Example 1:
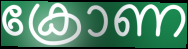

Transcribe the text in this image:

ക്രോണ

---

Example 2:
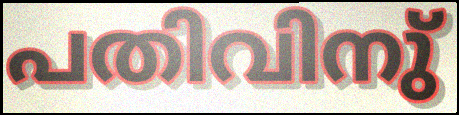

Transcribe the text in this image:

പതിവിനു്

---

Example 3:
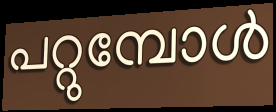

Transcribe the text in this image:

പറ്റുമ്പോൾ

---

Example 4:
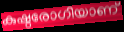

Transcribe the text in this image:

കുഷ്ഠരോഗിയാണ്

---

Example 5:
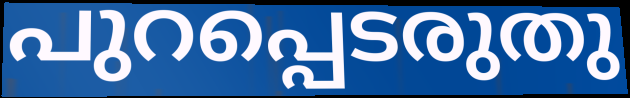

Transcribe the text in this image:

പുറപ്പെടരുതു